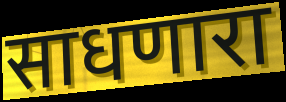
साधणारा